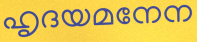
ഹൃദയമനേന